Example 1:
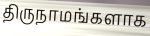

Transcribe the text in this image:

திருநாமங்களாக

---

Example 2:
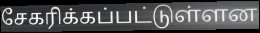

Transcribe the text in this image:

சேகரிக்கப்பட்டுள்ளன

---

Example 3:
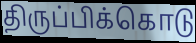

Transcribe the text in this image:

திருப்பிக்கொடு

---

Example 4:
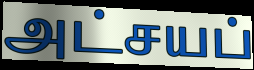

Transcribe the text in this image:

அட்சயப்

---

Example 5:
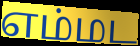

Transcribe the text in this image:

எம்மட